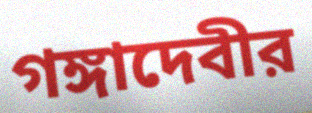
গঙ্গাদেবীর